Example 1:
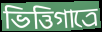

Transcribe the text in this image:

ভিত্তিগাত্রে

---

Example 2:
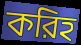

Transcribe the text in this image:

করিহ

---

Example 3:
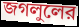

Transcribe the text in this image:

জগলুলের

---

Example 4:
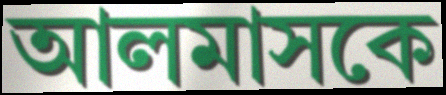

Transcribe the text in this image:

আলমাসকে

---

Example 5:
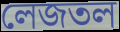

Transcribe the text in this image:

লেজতল